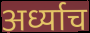
अर्ध्याच